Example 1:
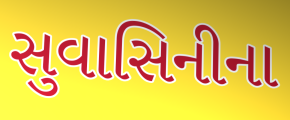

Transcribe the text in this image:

સુવાસિનીના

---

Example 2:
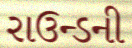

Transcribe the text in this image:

રાઉન્ડની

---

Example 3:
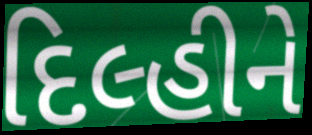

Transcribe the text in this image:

દિલ્હીને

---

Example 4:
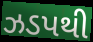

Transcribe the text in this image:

ઝડપથી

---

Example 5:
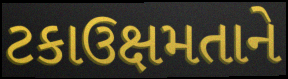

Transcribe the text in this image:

ટકાઉક્ષમતાને